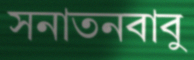
সনাতনবাবু